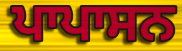
ਪਾਪਾਸਨ